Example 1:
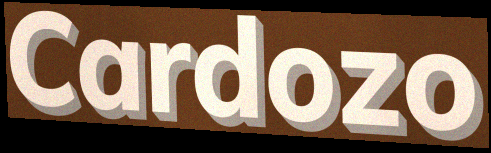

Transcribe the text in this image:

Cardozo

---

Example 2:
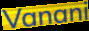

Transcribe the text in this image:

Vanani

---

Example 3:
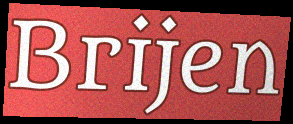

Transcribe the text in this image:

Brijen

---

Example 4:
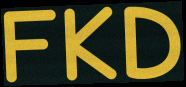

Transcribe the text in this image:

FKD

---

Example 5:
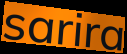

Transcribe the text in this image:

sarira